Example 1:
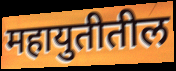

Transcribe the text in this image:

महायुतीतील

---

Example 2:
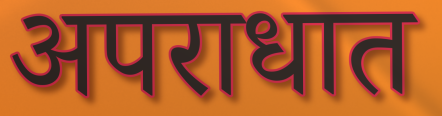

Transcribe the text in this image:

अपराधात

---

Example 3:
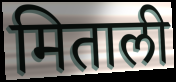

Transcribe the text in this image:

मिताली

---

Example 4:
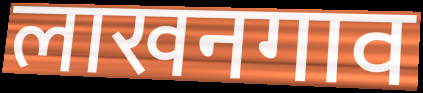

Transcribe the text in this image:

लाखनगाव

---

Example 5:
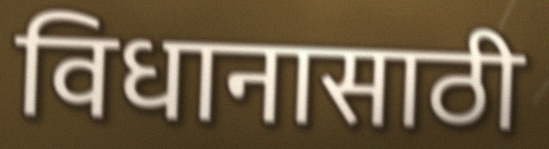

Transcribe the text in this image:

विधानासाठी